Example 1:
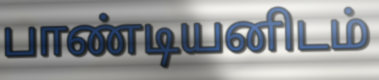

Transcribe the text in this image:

பாண்டியனிடம்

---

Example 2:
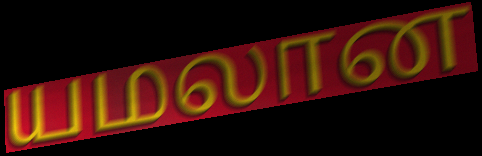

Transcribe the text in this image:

யமலான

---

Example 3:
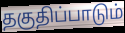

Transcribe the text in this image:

தகுதிப்பாடும்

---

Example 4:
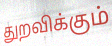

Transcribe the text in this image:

துறவிக்கும்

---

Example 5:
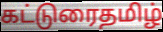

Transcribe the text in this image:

கட்டுரைதமிழ்